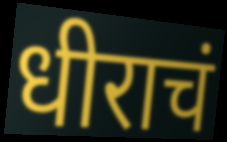
धीराचं